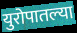
युरोपातल्या